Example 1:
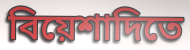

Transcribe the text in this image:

বিয়েশাদিতে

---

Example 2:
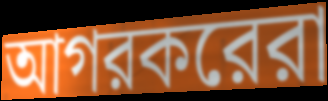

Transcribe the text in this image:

আগরকরেরা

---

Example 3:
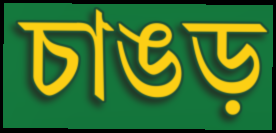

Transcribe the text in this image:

চাঙড়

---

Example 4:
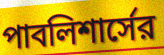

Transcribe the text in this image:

পাবলিশার্সের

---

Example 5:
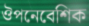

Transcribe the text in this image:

ঔপনেবেশিক